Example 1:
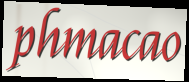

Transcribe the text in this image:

phmacao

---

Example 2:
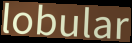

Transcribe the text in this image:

lobular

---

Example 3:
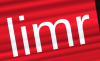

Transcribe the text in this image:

limr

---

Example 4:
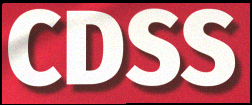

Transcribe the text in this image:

CDSS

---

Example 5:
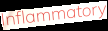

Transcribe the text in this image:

Inflammatory